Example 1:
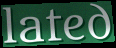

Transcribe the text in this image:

lated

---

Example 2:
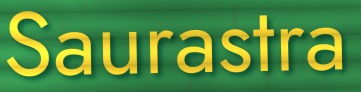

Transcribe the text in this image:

Saurastra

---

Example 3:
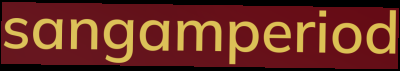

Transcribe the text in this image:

sangamperiod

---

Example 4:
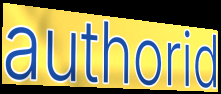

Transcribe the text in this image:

authorid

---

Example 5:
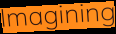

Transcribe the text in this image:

Imagining